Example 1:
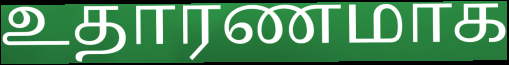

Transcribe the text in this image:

உதாரணமாக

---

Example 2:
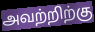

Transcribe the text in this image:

அவற்றிற்கு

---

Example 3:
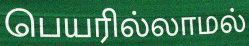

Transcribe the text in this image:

பெயரில்லாமல்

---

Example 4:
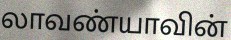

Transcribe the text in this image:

லாவண்யாவின்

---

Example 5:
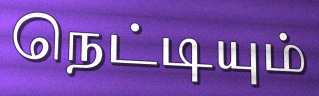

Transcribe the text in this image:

நெட்டியும்